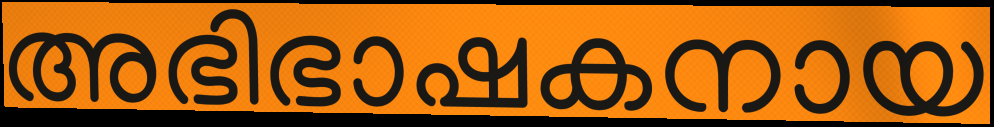
അഭിഭാഷകനായ